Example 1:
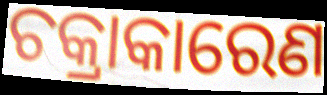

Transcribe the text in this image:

ଚକ୍ରାକାରେଣ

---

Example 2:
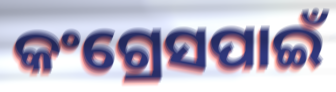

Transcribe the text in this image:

କଂଗ୍ରେସପାଇଁ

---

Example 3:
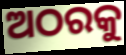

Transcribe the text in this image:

ଅଠରକୁ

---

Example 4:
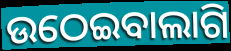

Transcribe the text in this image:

ଉଠେଇବାଲାଗି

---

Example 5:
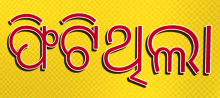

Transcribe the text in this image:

ଫିଟିଥିଲା